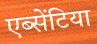
एब्सेंटिया